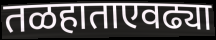
तळहाताएवढ्या